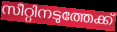
സീറ്റിനടുത്തേക്ക്